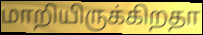
மாறியிருக்கிறதா